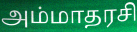
அம்மாதரசி